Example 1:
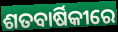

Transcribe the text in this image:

ଶତବାର୍ଷିକୀରେ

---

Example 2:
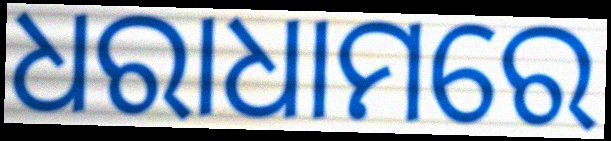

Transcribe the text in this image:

ଧରାଧାମରେ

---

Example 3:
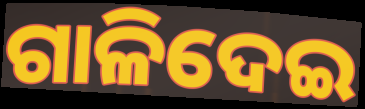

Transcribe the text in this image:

ଗାଳିଦେଇ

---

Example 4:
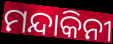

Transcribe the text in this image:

ମନ୍ଦାକିନୀ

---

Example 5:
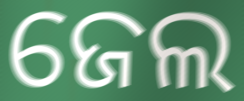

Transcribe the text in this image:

ଜେଲ